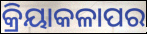
କ୍ରିୟାକଳାପର